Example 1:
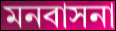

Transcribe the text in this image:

মনবাসনা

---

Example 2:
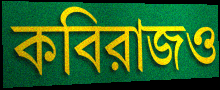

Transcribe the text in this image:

কবিরাজও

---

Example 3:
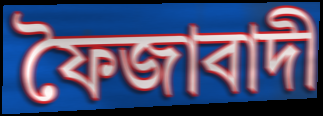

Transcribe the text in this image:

ফৈজাবাদী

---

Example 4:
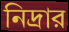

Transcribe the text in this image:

নিদ্রার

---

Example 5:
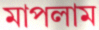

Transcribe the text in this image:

মাপলাম